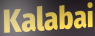
Kalabai